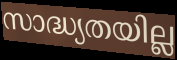
സാദ്ധ്യതയില്ല